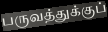
பருவத்துக்குப்